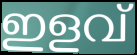
ഇളവ്